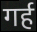
गर्ह